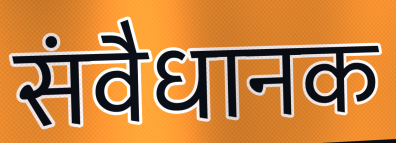
संवैधानक